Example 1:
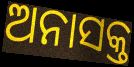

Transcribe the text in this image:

ଅନାସକ୍ତ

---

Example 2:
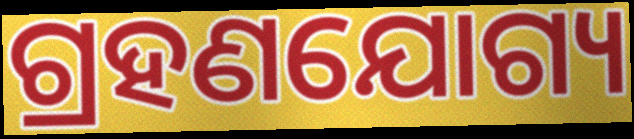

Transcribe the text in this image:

ଗ୍ରହଣଯୋଗ୍ୟ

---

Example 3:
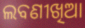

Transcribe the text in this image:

ଲବଣୀଖିଆ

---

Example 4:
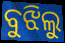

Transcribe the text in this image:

ବୁଝିଲୁ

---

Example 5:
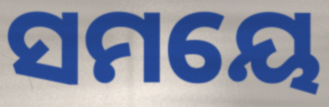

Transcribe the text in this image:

ସମୟେ